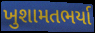
ખુશામતભર્યા